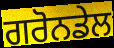
ਗਰੋਨਡੇਲ